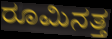
ರೂಮಿನತ್ತ